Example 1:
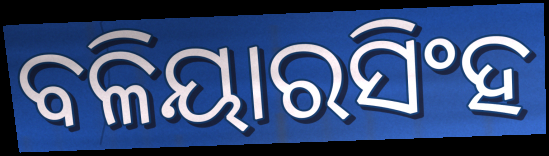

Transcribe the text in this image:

ବଳିୟାରସିଂହ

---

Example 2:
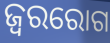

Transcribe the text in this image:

ଜ୍ୱରରୋଗ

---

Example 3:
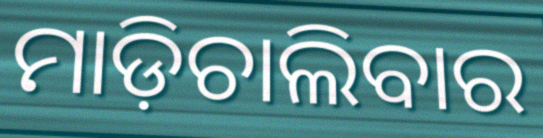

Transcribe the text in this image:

ମାଡ଼ିଚାଲିବାର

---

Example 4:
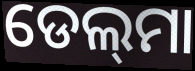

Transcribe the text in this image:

ଡେଲ୍‍ମା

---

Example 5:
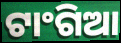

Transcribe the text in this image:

ଟାଂଗିଆ